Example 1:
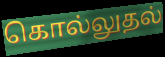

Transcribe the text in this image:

கொல்லுதல்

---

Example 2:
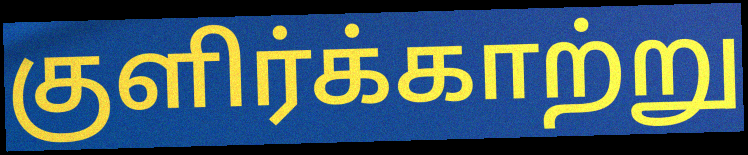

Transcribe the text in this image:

குளிர்க்காற்று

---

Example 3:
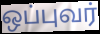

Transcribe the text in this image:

ஒப்புவர்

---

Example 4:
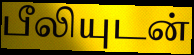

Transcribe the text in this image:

பீலியுடன்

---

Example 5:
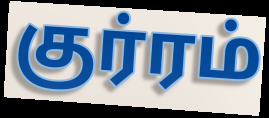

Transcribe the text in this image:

குர்ரம்